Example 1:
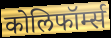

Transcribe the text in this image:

कोलिफॉर्म्स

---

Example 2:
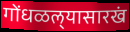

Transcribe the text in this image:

गोंधळल्यासारखं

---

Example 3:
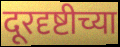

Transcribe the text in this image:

दूरदृष्टीच्या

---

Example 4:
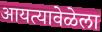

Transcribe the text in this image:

आयत्यावेळेला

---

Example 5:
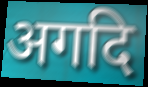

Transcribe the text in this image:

अगदि